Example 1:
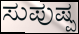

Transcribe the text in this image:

ಸುಪುಷ್ಪ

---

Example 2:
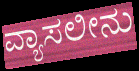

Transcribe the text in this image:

ವ್ಯಾಸಲೀನು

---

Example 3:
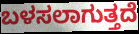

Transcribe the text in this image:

ಬಳಸಲಾಗುತ್ತದೆ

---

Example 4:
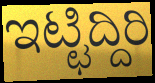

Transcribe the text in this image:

ಇಟ್ಟಿದ್ದಿರಿ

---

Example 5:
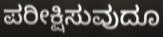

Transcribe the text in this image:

ಪರೀಕ್ಷಿಸುವುದೂ